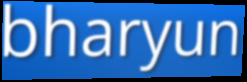
bharyun